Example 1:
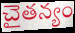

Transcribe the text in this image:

చైతన్యం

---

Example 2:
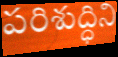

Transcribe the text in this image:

పరిశుద్ధిని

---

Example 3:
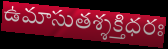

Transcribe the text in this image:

ఉమాసుతశ్శక్తిధరః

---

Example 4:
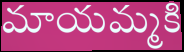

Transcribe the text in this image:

మాయమ్మకి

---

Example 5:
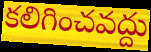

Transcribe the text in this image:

కలిగించవద్దు